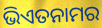
ଭିଏତନାମର